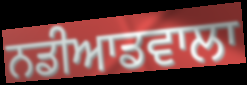
ਨਡੀਆਡਵਾਲਾ